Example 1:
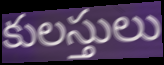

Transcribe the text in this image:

కులస్తులు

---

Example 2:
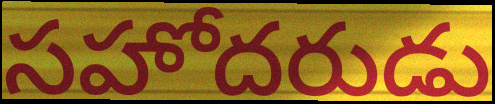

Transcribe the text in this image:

సహోదరుడు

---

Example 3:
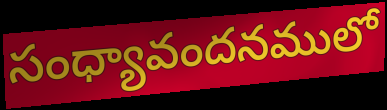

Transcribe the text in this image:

సంధ్యావందనములో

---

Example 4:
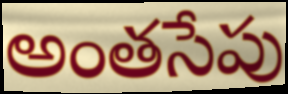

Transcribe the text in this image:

అంతసేపు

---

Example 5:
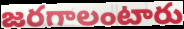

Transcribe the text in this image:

జరగాలంటారు